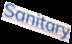
Sanitary